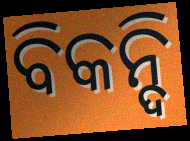
ବିକନ୍ଦି